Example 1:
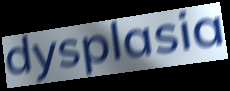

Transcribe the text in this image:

dysplasia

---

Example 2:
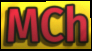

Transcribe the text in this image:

MCh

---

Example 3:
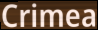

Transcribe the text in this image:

Crimea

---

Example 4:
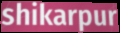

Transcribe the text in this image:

shikarpur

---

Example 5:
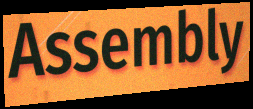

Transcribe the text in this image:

Assembly